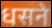
धसने